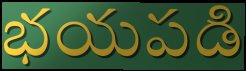
భయపడి